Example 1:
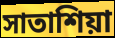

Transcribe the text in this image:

সাতাশিয়া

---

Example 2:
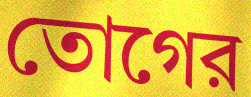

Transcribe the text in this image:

তোগের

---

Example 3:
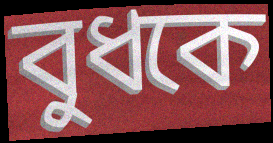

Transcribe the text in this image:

বুধকে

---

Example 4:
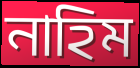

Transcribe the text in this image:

নাহিম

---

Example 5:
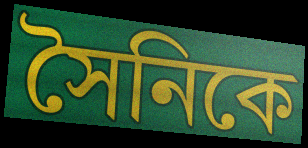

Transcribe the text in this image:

সৈনিকে